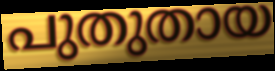
പുതുതായ